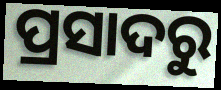
ପ୍ରସାଦରୁ